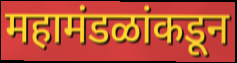
महामंडळांकडून